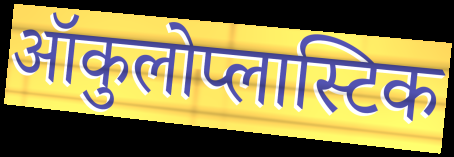
ऑकुलोप्लास्टिक